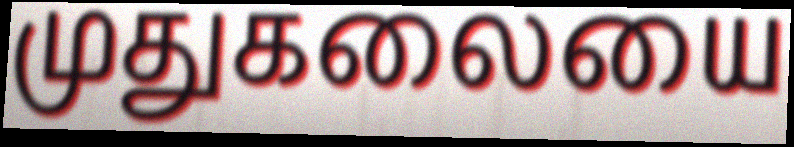
முதுகலையை